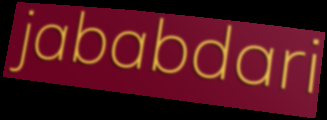
jababdari